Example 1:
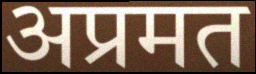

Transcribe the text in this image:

अप्रमत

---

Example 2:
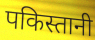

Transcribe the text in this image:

पकिस्तानी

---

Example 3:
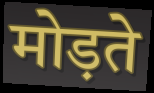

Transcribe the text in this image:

मोड़ते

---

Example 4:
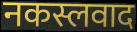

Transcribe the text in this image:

नकस्लवाद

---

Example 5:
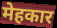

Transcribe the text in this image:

मेहकार